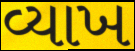
વ્યાખ